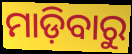
ମାଡ଼ିବାରୁ